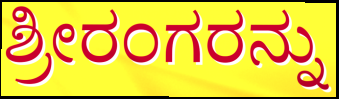
ಶ್ರೀರಂಗರನ್ನು